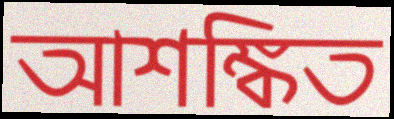
আশঙ্কিত